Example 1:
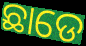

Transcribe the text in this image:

ଛାଡେ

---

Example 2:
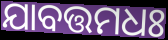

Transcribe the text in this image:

ଯାବତ୍ତମଧଃ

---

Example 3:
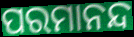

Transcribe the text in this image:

ପରମାନନ୍ଦ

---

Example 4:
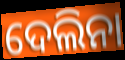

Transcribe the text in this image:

ଦେଲିନା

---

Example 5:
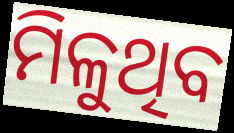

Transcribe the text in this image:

ମିଳୁଥିବ